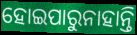
ହୋଇପାରୁନାହାନ୍ତି